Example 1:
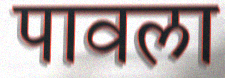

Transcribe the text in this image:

पावला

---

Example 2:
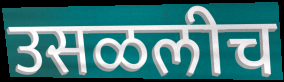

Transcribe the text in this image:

उसळलीच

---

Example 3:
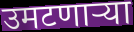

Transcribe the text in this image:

उमटणाऱ्या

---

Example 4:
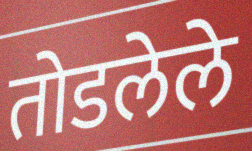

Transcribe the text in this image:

तोडलेले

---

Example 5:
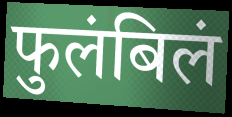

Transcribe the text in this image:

फुलंबिलं